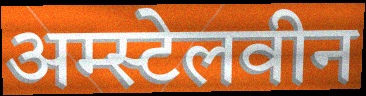
अम्स्टेलवीन